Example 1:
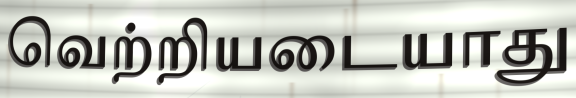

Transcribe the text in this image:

வெற்றியடையாது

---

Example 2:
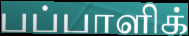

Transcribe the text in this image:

பப்பாளிக்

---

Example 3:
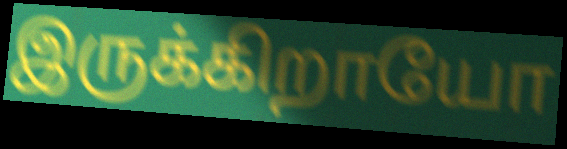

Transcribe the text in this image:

இருக்கிறாயோ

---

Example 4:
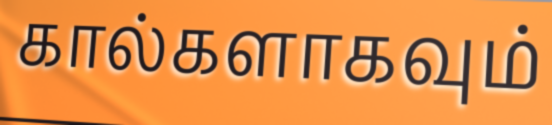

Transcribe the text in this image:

கால்களாகவும்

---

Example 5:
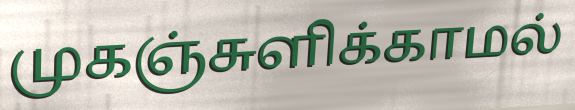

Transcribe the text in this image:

முகஞ்சுளிக்காமல்